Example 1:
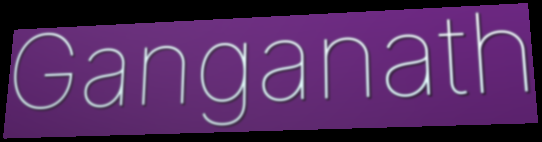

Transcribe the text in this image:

Ganganath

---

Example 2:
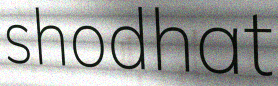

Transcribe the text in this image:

shodhat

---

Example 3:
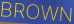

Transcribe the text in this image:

BROWN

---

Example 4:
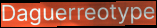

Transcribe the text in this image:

Daguerreotype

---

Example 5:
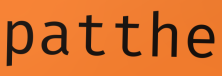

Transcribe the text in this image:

patthe